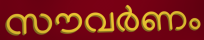
സൗവർണം